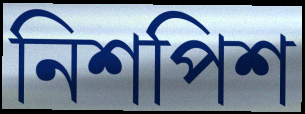
নিশপিশ